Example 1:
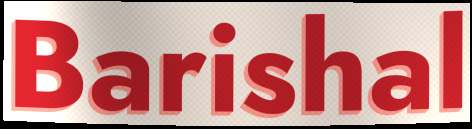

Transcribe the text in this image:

Barishal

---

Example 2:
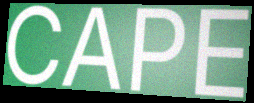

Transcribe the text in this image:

CAPE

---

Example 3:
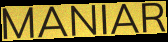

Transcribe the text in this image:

MANIAR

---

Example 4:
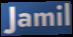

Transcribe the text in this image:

Jamil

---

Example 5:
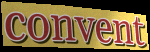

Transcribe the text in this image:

convent